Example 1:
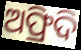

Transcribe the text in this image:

ଅଫ୍ରିଦି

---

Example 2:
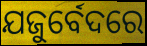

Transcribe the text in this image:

ଯଜୁର୍ବେଦରେ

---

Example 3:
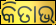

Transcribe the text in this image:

କିତାଭ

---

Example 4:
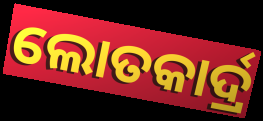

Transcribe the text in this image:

ଲୋତକାର୍ଦ୍ର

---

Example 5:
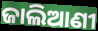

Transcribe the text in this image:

ଜାଲିଆଣୀ